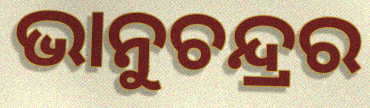
ଭାନୁଚନ୍ଦ୍ରର